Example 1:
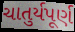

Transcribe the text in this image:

ચાતુર્યપૂર્ણ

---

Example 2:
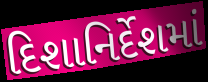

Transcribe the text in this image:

દિશાનિર્દેશમાં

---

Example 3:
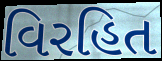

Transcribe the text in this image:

વિરહિત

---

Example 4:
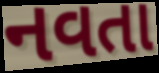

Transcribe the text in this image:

નવતા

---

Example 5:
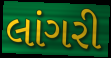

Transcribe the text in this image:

લાંગરી